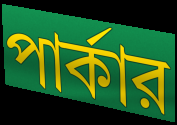
পার্কার